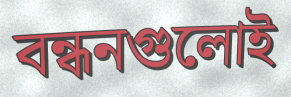
বন্ধনগুলোই